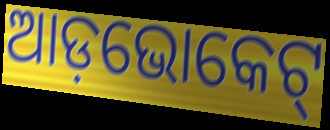
ଆଡ଼ଭୋକେଟ୍